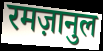
रमज़ानुल